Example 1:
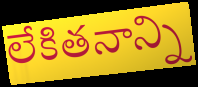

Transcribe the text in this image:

లేకితనాన్ని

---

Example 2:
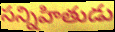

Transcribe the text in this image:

సన్నిహితుడు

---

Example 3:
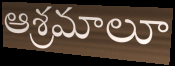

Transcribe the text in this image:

ఆశ్రమాలూ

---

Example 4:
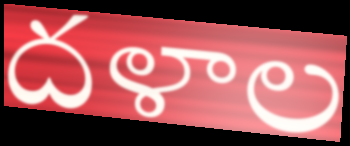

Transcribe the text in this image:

దళాల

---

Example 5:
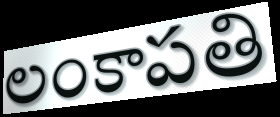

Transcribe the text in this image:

లంకాపతి